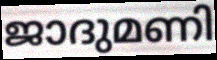
ജാദുമണി